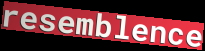
resemblence